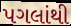
પગલાંથી